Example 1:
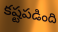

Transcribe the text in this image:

కష్టపడింది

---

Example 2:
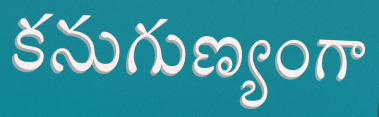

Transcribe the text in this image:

కనుగుణ్యంగా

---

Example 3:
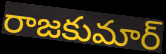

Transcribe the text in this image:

రాజకుమార్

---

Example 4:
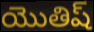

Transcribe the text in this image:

యొతిష్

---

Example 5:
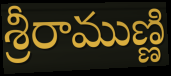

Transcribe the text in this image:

శ్రీరాముణ్ణి